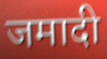
जमादी